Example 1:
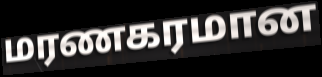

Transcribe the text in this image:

மரணகரமான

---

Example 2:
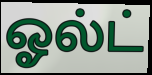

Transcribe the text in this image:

ஓல்ட்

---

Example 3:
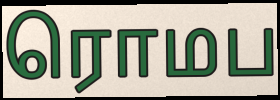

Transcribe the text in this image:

ரொமப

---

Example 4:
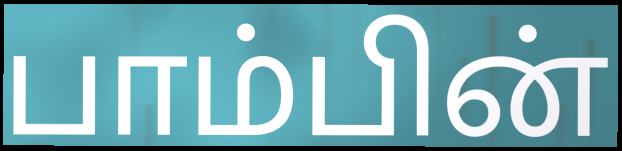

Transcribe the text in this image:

பாம்பின்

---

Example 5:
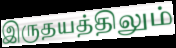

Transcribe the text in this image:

இருதயத்திலும்